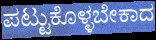
ಪಟ್ಟುಕೊಳ್ಳಬೇಕಾದ